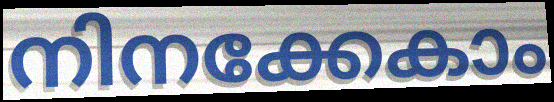
നിനക്കേകാം